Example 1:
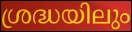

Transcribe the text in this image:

ശ്രദ്ധയിലും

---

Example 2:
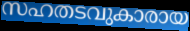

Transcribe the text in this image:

സഹതടവുകാരായ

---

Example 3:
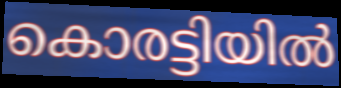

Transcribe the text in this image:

കൊരട്ടിയിൽ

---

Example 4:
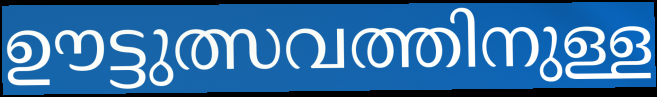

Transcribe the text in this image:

ഊട്ടുത്സവത്തിനുള്ള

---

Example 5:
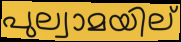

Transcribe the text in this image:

പുല്വാമയില്